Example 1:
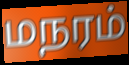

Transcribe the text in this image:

மநரம்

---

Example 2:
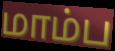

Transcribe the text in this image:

மாம்ப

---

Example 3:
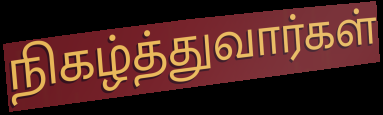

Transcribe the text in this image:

நிகழ்த்துவார்கள்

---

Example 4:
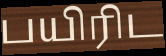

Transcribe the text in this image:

பயிரிட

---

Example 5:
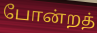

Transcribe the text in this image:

போன்றத்